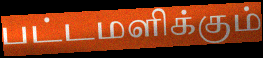
பட்டமளிக்கும்